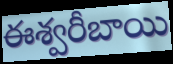
ఈశ్వరీబాయి